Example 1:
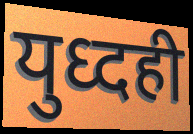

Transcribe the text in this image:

युध्दही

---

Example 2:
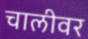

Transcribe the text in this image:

चालीवर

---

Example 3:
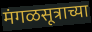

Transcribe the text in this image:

मंगळसूत्राच्या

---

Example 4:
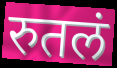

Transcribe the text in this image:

रुतलं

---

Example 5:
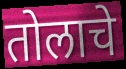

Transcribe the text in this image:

तोलाचे